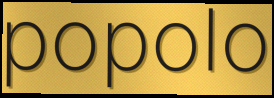
popolo